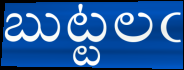
బుట్టలఁ